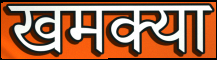
खमक्या